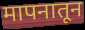
मापनातून